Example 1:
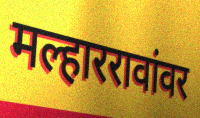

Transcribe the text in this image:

मल्हाररावांवर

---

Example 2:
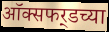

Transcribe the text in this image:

ऑक्सफर्डच्या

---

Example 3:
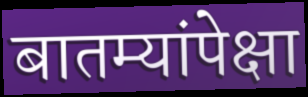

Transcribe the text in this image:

बातम्यांपेक्षा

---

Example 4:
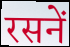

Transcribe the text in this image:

रसनें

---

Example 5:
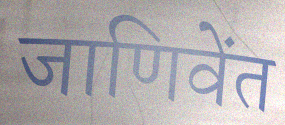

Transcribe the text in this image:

जाणिवेंत